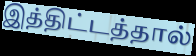
இத்திட்டத்தால்